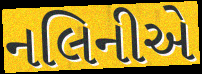
નલિનીએ